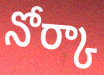
నోర్కా